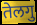
तेलगु